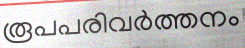
രൂപപരിവർത്തനം